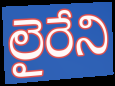
లైరేని